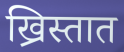
ख्रिस्तात